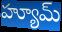
హ్యూమ్